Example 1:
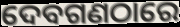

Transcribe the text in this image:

ଦେବଗଣଠାରେ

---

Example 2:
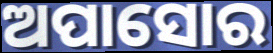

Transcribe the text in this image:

ଅପାସୋର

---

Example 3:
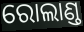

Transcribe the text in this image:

ରୋଲାଣ୍ଡ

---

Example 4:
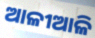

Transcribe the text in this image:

ଆଳୀଆଳି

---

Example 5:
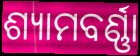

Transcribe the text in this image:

ଶ୍ୟାମବର୍ଣ୍ଣା